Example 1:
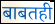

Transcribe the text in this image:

बाबतही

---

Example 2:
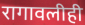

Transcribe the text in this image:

रागावलीही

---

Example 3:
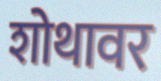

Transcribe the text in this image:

शोथावर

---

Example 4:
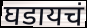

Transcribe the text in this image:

घडायचं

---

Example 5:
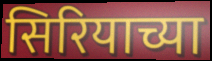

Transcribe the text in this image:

सिरियाच्या